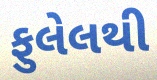
ફુલેલથી